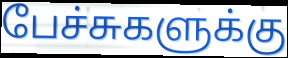
பேச்சுகளுக்கு